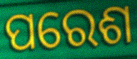
ପରେଶ